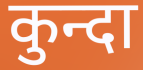
कुन्दा